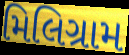
મિલિગ્રામ